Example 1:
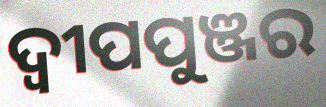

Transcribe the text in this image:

ଦ୍ଵୀପପୁଞ୍ଜର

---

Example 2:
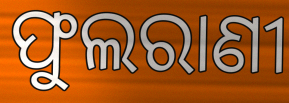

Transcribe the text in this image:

ଫୁଲରାଣୀ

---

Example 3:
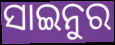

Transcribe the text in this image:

ସାଇନୁର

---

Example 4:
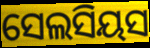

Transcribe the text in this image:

ସେଲସିୟସ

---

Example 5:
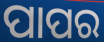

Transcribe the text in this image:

ପାପର